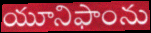
యూనిఫాంను